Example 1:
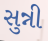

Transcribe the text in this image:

સુન્ની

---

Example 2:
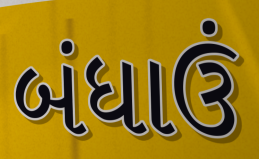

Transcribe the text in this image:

બંધાઉં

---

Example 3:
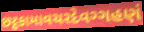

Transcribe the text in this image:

છટ્ઠકામાવચરદેવગ્ગહણં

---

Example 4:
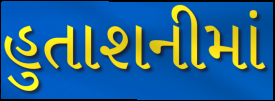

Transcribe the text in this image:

હુતાશનીમાં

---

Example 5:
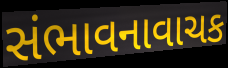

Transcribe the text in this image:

સંભાવનાવાચક